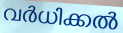
വർധിക്കൽ